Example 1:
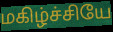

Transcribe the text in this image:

மகிழ்ச்சியே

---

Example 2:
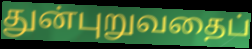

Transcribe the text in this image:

துன்புறுவதைப்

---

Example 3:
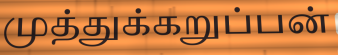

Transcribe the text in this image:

முத்துக்கறுப்பன்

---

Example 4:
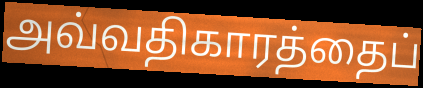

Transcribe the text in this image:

அவ்வதிகாரத்தைப்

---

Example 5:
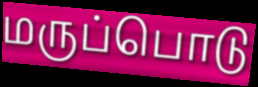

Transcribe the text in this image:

மருப்பொடு